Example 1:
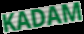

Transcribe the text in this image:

KADAM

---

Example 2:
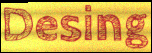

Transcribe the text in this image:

Desing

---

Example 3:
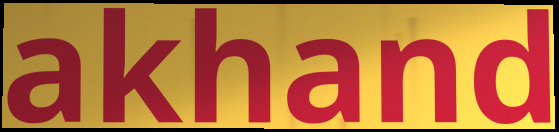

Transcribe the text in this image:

akhand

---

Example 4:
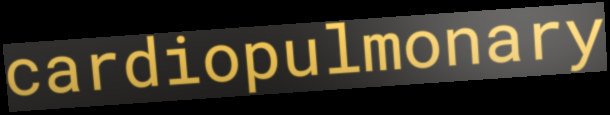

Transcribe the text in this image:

cardiopulmonary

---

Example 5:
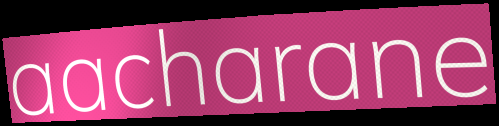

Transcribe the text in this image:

aacharane